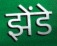
झेंडे